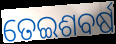
ତେଇଶବର୍ଷ